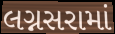
લગ્નસરામાં